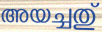
അയച്ചതു്